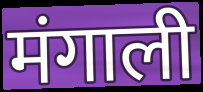
मंगाली